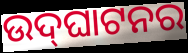
ଉଦ୍‌ଘାଟନର